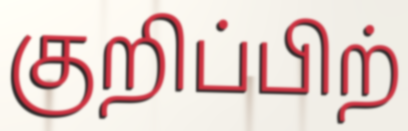
குறிப்பிற்